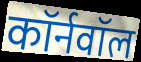
कॉर्नवॉल